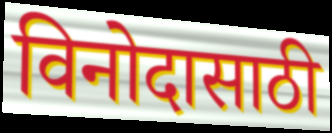
विनोदासाठी